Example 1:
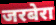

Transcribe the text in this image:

जरबेरा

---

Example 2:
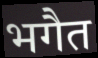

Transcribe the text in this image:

भगैत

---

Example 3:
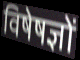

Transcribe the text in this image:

विषेषज्ञों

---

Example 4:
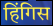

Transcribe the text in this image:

हिंगिस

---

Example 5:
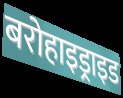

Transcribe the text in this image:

बरोहाइड्राइड